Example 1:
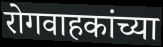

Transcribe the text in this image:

रोगवाहकांच्या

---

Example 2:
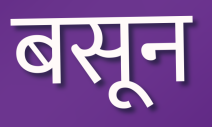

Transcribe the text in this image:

बसून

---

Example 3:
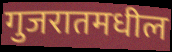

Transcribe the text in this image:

गुजरातमधील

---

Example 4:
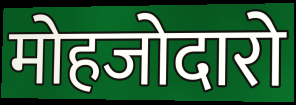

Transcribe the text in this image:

मोहजोदारो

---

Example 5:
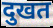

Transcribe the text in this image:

दुखत